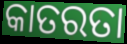
କାତରତା